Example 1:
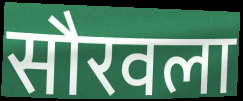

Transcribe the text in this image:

सौरवला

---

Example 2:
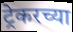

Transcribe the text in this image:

ट्रेकरच्या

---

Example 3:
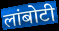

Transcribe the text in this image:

लांबोटी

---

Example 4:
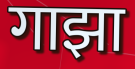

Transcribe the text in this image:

गाझा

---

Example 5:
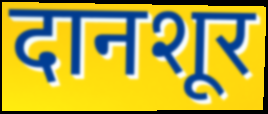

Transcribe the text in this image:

दानशूर